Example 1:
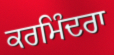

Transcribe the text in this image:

ਕਰਮਿੰਦਰਾ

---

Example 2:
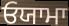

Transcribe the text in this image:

ਓਯਾਮਾ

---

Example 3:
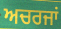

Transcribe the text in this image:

ਅਚਰਜਾਂ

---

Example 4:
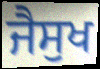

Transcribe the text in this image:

ਜੈਸੁਖ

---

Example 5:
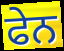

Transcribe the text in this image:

ਫੇਨ